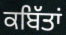
ਕਬਿੱਤਾਂ